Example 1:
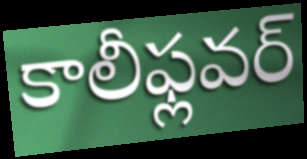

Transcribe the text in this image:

కాలీఫ్లవర్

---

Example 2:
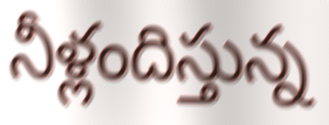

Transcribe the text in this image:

నీళ్లందిస్తున్న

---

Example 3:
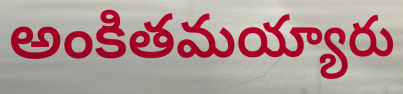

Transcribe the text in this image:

అంకితమయ్యారు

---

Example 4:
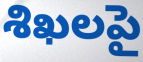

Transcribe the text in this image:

శిఖలపై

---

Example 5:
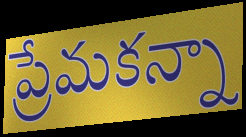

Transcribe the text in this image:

ప్రేమకన్నా